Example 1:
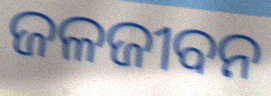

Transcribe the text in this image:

ଜଳଜୀବନ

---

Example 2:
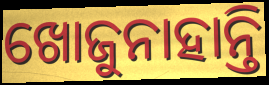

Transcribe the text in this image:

ଖୋଜୁନାହାନ୍ତି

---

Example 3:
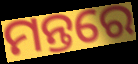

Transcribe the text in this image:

ମନ୍ତରେ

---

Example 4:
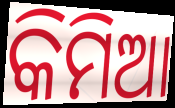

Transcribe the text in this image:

କିମିଆ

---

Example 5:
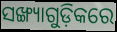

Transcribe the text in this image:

ସଙ୍ଖ୍ୟାଗୁଡ଼ିକରେ